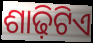
ଶାଢ଼ିଟିଏ